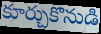
కూర్చుకొనుడి